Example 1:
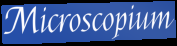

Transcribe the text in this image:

Microscopium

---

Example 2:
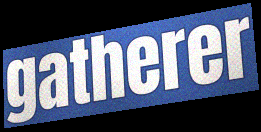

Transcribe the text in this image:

gatherer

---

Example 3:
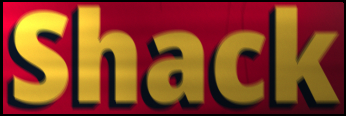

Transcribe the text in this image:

Shack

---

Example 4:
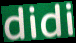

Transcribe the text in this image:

didi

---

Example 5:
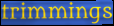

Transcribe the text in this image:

trimmings